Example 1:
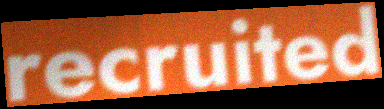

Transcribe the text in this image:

recruited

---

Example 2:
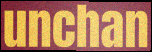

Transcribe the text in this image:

unchan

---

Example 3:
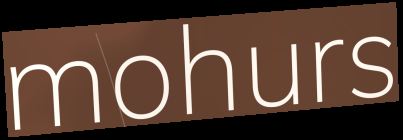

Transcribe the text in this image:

mohurs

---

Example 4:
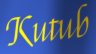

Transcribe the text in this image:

Kutub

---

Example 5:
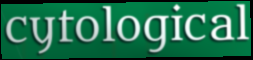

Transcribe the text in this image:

cytological